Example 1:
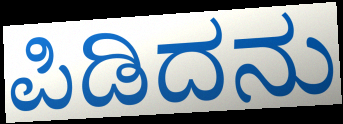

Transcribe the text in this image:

ಪಿಡಿದನು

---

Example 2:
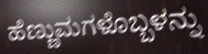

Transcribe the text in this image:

ಹೆಣ್ಣುಮಗಳೊಬ್ಬಳನ್ನು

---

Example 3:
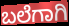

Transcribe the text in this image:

ಬಲೆಗಾಗಿ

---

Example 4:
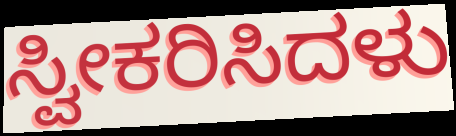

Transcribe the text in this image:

ಸ್ವೀಕರಿಸಿದಳು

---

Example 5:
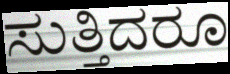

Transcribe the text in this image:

ಸುತ್ತಿದರೂ